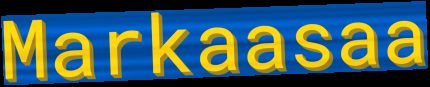
Markaasaa